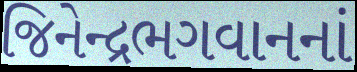
જિનેન્દ્રભગવાનનાં